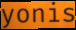
yonis